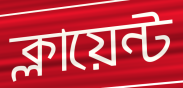
ক্লায়েন্ট